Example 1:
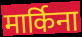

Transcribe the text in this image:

मार्किना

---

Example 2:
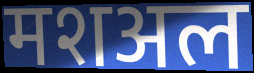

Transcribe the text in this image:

मशअल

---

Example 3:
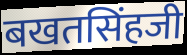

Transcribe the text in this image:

बखतसिंहजी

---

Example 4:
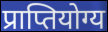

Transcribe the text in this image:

प्राप्तियोग्य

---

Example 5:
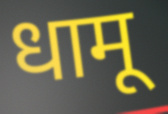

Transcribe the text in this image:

धामू